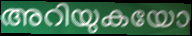
അറിയുകയോ